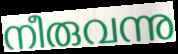
നീരുവന്നു